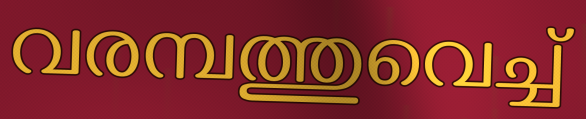
വരമ്പത്തുവെച്ച്